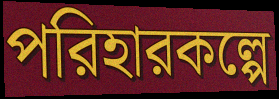
পরিহারকল্পে